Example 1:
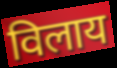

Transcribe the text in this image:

विलाय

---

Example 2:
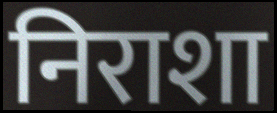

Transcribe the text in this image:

निराशा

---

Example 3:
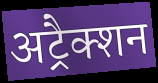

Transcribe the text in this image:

अट्रैक्शन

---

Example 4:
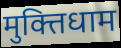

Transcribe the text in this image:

मुक्तिधाम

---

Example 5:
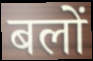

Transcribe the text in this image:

बलों